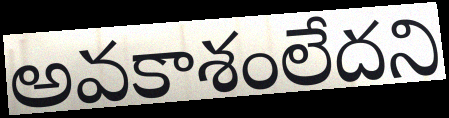
అవకాశంలేదని